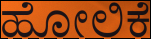
ಹೋಲಿಕೆ